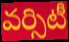
వర్సిటీ